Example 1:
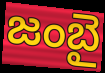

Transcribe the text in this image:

జంబై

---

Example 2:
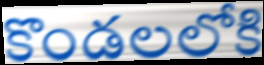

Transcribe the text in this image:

కొండలలోకి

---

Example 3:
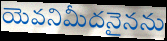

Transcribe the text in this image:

యెవనిమీదనైనను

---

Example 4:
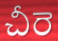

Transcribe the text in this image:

చీరె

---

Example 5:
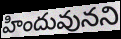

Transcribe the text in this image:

హిందువునని